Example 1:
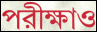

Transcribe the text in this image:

পরীক্ষাও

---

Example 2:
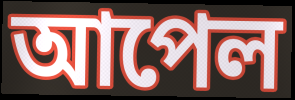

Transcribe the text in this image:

আপেল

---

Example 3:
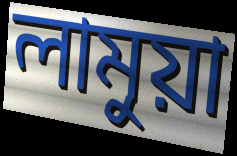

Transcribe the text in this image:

লামুয়া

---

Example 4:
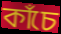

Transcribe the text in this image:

কাঁচে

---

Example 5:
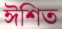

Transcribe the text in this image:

ঈশিত